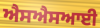
ਐਸਐਸਆਈ